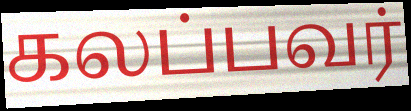
கலப்பவர்